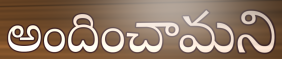
అందించామని